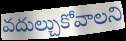
వదుల్చుకోవాలని